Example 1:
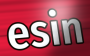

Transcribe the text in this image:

esin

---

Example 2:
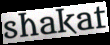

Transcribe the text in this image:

shakat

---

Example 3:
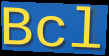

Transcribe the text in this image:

Bcl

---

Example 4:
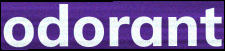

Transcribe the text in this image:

odorant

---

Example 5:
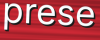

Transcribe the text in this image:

prese